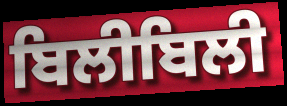
ਬਿਲੀਬਿਲੀ